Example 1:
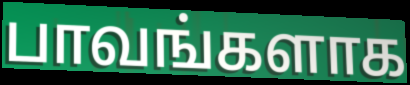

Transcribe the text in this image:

பாவங்களாக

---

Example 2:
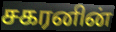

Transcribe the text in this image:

சகரனின்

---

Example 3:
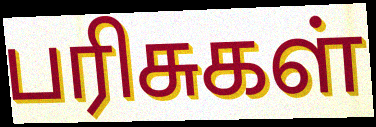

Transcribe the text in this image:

பரிசுகள்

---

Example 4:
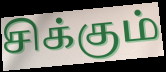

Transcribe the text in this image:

சிக்கும்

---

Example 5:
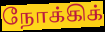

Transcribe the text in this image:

நோக்கிக்